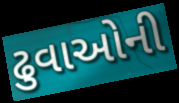
ઢુવાઓની